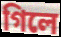
গিলে